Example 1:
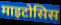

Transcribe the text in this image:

माइटोसिस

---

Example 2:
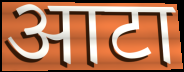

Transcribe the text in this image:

आटा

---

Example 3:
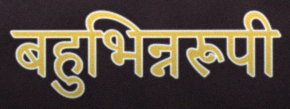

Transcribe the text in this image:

बहुभिन्नरूपी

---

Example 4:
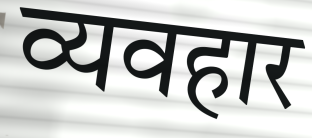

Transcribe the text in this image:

व्यवहार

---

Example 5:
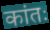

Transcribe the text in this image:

कांतः